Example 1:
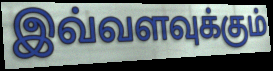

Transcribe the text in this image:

இவ்வளவுக்கும்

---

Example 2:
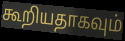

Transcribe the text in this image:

கூறியதாகவும்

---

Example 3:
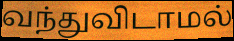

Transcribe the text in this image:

வந்துவிடாமல்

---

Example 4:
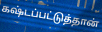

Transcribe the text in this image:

கஷ்டப்பட்டுத்தான்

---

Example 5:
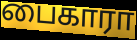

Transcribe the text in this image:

பைகாரா